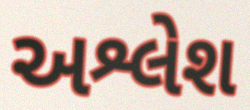
અશ્લેશ